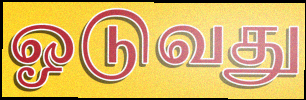
ஓடுவது